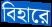
বিহারে